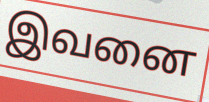
இவனை